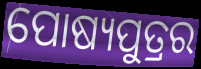
ପୋଷ୍ୟପୁତ୍ରର